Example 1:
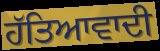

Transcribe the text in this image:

ਹੱਤਿਆਵਾਦੀ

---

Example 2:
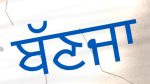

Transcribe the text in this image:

ਬੱਣਜਾ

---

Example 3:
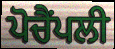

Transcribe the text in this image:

ਪੋਚੈਂਪਲੀ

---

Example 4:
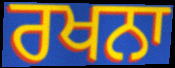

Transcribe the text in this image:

ਰਖਨਾ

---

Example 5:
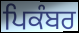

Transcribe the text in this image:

ਪਿਕੰਬਰ